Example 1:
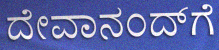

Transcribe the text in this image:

ದೇವಾನಂದ್‌ಗೆ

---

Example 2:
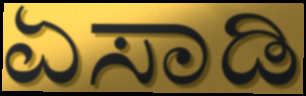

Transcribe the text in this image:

ಏಸಾಡಿ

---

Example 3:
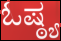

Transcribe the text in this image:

ಓಷ್ಠ್ಯ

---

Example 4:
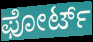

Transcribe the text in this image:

ಫೋರ್ಟ್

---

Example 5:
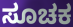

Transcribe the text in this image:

ಸೂಚಕ